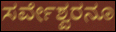
ಸರ್ವೇಶ್ವರನೂ